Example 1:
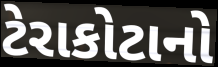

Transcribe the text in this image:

ટેરાકોટાનો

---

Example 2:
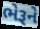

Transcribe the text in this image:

ભેરૂને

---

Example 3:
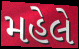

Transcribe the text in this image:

મહેલે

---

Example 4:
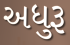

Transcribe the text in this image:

અધુરૂ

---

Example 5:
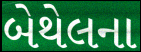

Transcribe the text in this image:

બેથેલના